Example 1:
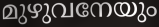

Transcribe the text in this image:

മുഴുവനേയും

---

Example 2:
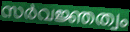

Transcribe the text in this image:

സർവജ്ഞത്വം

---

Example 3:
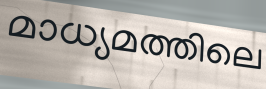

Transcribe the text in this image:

മാധ്യമത്തിലെ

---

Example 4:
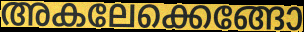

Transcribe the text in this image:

അകലേക്കെങ്ങോ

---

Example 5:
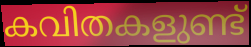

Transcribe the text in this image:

കവിതകളുണ്ട്